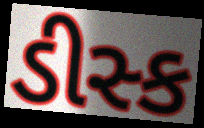
ડીસ્ક